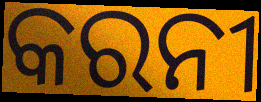
କରନୀ